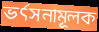
ভর্ৎসনামূলক